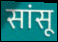
सांसू